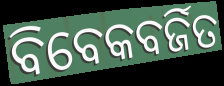
ବିବେକବର୍ଜିତ